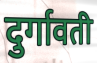
दुर्गावती